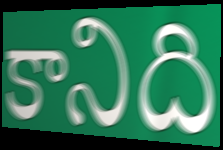
కానిది